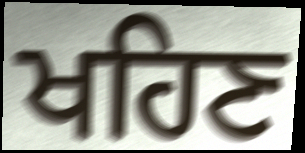
ਖਹਿਣ